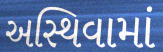
અસ્થિવામાં